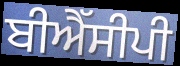
ਬੀਐੱਸੀਪੀ